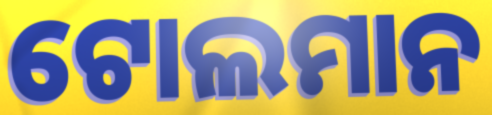
ଟୋଲମାନ